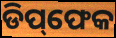
ଡିପ୍‌ଫେକ